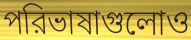
পরিভাষাগুলোও